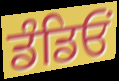
ਡੰਡਿਓਂ